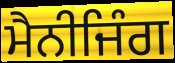
ਮੈਨੀਜਿੰਗ